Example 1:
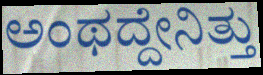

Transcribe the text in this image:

ಅಂಥದ್ದೇನಿತ್ತು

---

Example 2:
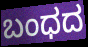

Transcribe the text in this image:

ಬಂಧದ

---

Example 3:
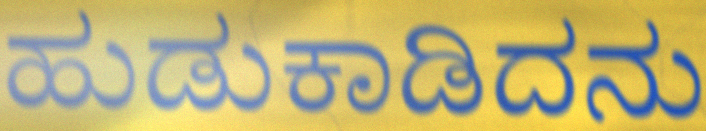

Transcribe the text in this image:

ಹುಡುಕಾಡಿದನು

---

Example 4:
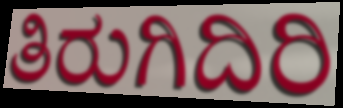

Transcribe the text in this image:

ತಿರುಗಿದಿರಿ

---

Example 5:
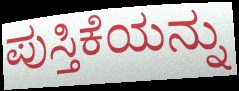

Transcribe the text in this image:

ಪುಸ್ತಿಕೆಯನ್ನು